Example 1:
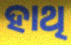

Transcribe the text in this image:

ହାଥି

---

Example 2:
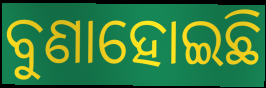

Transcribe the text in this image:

ବୁଣାହୋଇଛି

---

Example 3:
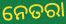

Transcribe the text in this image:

ନେତରା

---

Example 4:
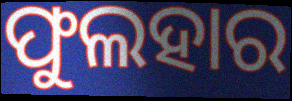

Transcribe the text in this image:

ଫୁଲହାର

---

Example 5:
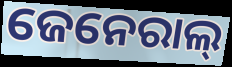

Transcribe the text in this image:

ଜେନେରାଲ୍